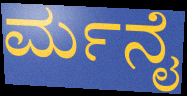
ರ್ಮನೈ